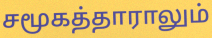
சமூகத்தாராலும்